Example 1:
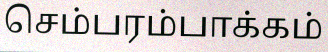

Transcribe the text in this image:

செம்பரம்பாக்கம்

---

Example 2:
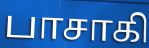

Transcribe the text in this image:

பாசாகி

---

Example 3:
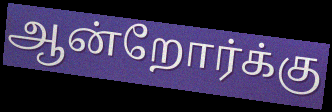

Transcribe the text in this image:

ஆன்றோர்க்கு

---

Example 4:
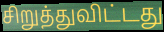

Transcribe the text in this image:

சிறுத்துவிட்டது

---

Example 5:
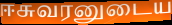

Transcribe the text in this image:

ஈசுவரனுடைய